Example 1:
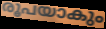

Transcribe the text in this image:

രൂപയാകും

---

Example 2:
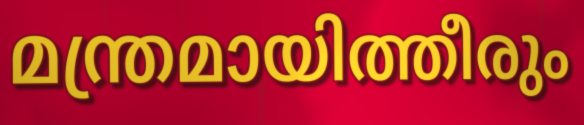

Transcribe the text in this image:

മന്ത്രമായിത്തീരും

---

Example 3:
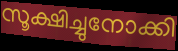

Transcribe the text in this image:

സൂക്ഷിച്ചുനോക്കി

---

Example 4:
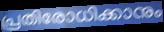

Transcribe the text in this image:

പ്രതിരോധിക്കാനും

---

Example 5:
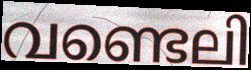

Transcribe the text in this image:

വണ്ടെലി